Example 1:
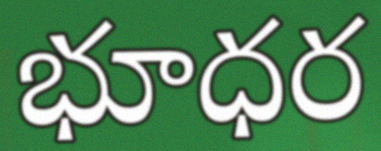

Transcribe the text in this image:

భూధర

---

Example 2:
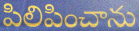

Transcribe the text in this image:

పిలిపించాను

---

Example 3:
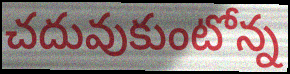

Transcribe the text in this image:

చదువుకుంటోన్న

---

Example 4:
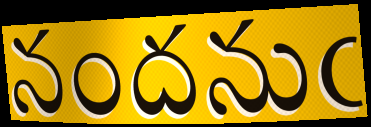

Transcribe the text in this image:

నందనుఁ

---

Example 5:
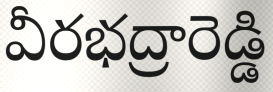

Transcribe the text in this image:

వీరభద్రారెడ్డి